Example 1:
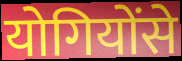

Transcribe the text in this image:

योगियोंसे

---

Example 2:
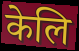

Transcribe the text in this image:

केलि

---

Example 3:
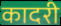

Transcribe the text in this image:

कादरी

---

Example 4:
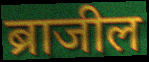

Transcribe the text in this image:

ब्राजील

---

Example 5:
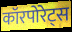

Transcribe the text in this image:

कॉरपोरेट्स